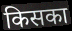
किसका